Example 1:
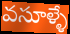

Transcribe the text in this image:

వసూళ్ళే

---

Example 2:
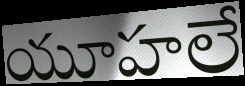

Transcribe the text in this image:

యూహలే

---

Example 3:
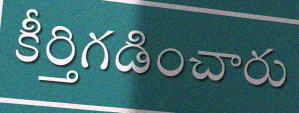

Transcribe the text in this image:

కీర్తిగడించారు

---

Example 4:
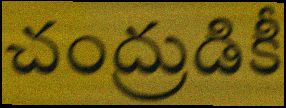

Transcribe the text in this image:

చంద్రుడికీ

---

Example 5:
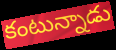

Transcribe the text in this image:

కంటున్నాడు